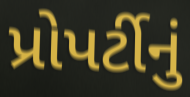
પ્રોપર્ટીનું